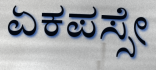
ಏಕಪಸ್ಸೇ